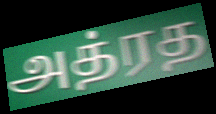
அத்ரத